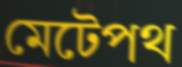
মেটেপথ